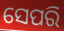
ସେପରି